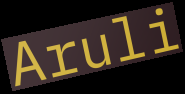
Aruli